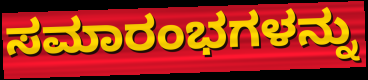
ಸಮಾರಂಭಗಳನ್ನು